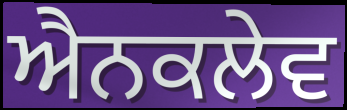
ਐਨਕਲੇਵ